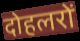
दोहलरों